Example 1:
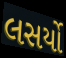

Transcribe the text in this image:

લસર્યો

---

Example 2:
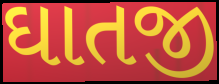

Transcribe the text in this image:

ઘાતજી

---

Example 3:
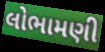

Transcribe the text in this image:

લોભામણી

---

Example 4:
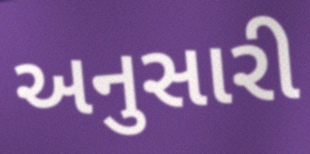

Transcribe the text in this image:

અનુસારી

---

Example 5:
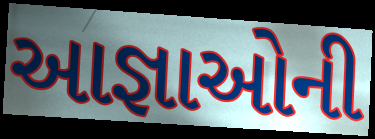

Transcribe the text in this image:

આજ્ઞાઓની